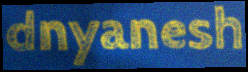
dnyanesh